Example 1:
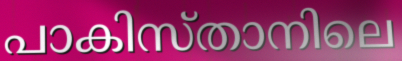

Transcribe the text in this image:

പാകിസ്താനിലെ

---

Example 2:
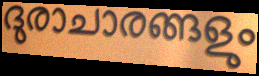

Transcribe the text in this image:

ദുരാചാരങ്ങളും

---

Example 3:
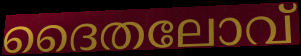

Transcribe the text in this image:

ദൈതലോവ്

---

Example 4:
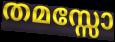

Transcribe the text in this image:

തമസ്സോ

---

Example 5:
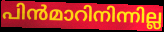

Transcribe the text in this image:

പിൻമാറിനിന്നില്ല